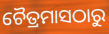
ଚୈତ୍ରମାସଠାରୁ